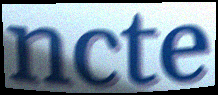
ncte